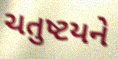
ચતુષ્ટયને